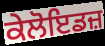
ਕੇਲੋਇਡਜ਼